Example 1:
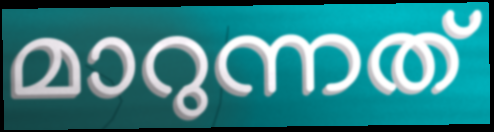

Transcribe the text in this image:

മാറുന്നത്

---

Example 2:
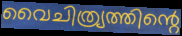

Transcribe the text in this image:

വൈചിത്ര്യത്തിന്റെ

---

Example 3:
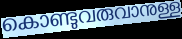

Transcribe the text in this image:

കൊണ്ടുവരുവാനുള്ള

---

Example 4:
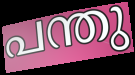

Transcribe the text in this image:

പന്തു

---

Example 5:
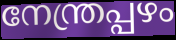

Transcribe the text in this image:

നേന്ത്രപ്പഴം